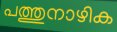
പത്തുനാഴിക